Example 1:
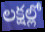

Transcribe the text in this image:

లక్షల్లో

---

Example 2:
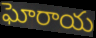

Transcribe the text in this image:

ఘోరాయ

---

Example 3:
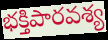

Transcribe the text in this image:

భక్తిపారవశ్య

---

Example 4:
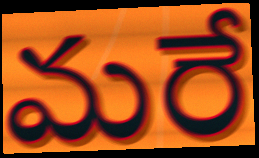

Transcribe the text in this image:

మరే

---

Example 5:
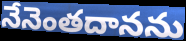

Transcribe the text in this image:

నేనెంతదానను